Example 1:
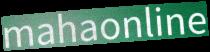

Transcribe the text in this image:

mahaonline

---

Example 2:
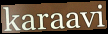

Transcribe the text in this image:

karaavi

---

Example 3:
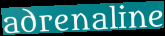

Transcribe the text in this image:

adrenaline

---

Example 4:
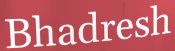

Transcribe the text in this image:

Bhadresh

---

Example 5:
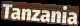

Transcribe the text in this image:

Tanzania